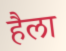
हैला